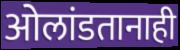
ओलांडतानाही